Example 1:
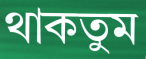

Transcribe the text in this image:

থাকতুম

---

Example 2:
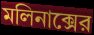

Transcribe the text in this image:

মলিনাক্সের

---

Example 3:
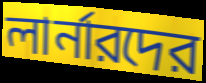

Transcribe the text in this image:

লার্নারদের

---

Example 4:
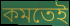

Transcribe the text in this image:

কমতেই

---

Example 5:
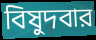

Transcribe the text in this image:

বিষুদবার